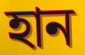
হান